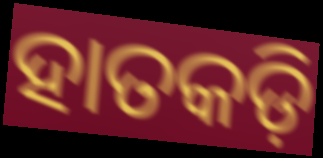
ହାତକଡ଼ି